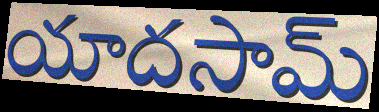
యాదసామ్